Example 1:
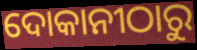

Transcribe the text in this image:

ଦୋକାନୀଠାରୁ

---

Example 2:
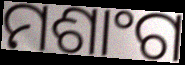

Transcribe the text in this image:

ମଶାଂଗ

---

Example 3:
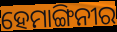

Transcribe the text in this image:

ହେମାଙ୍ଗିନୀର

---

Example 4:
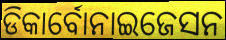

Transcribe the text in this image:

ଡିକାର୍ବୋନାଇଜେସନ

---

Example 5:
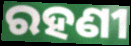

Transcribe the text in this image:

ରହଣୀ